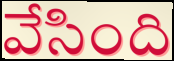
వేసింది